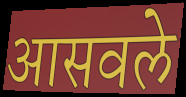
आसवले